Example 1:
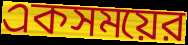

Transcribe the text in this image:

একসময়ের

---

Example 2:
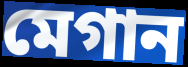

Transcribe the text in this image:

মেগান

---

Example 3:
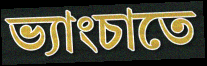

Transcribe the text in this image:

ভ্যাংচাতে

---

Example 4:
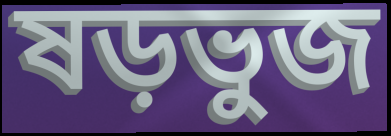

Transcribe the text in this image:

ষড়ভুজ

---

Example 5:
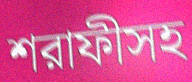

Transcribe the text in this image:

শরাফীসহ